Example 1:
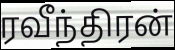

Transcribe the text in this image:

ரவீந்திரன்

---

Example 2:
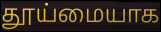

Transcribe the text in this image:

தூய்மையாக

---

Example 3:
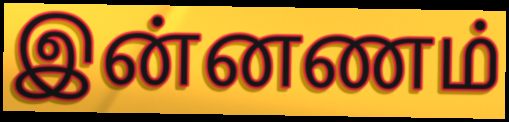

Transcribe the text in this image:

இன்னணம்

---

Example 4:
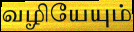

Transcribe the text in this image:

வழியேயும்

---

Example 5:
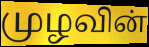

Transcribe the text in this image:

முழவின்